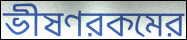
ভীষণরকমের